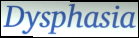
Dysphasia